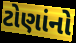
ટોણાંનો